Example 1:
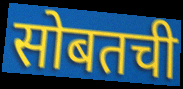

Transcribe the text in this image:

सोबतची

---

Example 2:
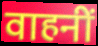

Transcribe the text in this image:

वाहनीं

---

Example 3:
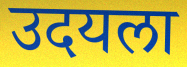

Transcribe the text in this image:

उदयला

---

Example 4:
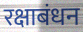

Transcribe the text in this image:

रक्षाबंधन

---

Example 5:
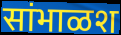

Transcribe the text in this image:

सांभाळश